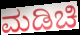
ಮಡಿಚಿ